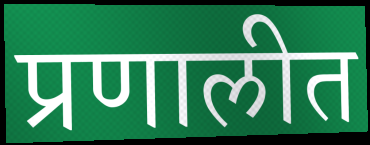
प्रणालीत